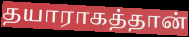
தயாராகத்தான்